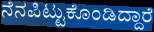
ನೆನಪಿಟ್ಟುಕೊಂಡಿದ್ದಾರೆ